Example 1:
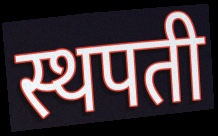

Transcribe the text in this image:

स्थपती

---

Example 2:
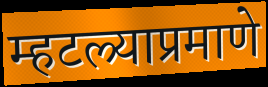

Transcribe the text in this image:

म्हटल्याप्रमाणे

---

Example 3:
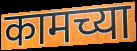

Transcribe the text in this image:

कामच्या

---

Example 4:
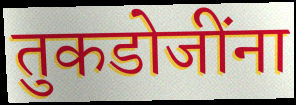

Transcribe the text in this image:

तुकडोजींना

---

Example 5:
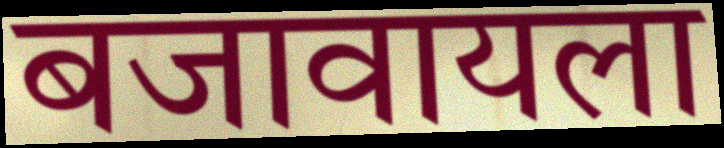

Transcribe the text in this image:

बजावायला